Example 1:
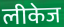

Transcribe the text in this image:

लीकेज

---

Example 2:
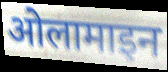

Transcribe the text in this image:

ओलामाइन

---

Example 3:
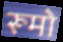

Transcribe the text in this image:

रूमो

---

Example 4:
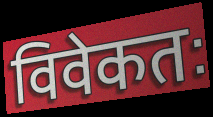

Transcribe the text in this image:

विवेकतः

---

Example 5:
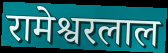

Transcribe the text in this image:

रामेश्वरलाल